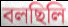
বলছিলি